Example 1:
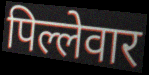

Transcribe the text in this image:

पिल्लेवार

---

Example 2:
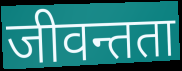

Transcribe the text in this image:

जीवन्तता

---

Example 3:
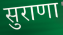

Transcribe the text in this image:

सुराणा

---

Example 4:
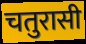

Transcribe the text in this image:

चतुरासी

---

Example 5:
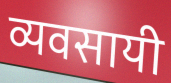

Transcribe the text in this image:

व्यवसायी